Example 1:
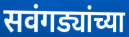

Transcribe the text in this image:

सवंगड्यांच्या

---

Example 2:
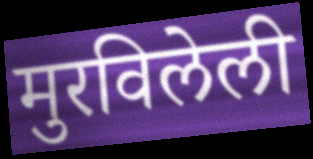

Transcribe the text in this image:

मुरविलेली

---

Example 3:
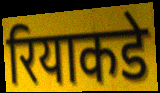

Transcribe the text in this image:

रियाकडे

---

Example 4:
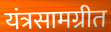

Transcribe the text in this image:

यंत्रसामग्रीत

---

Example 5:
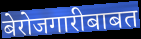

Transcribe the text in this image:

बेरोजगारीबाबत